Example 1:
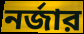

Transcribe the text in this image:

নর্জার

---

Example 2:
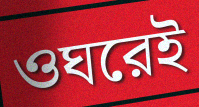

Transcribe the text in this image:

ওঘরেই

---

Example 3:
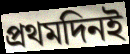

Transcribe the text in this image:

প্রথমদিনই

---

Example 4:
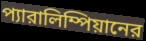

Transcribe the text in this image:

প্যারালিম্পিয়ানের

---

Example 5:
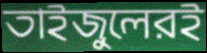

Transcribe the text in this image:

তাইজুলেরই